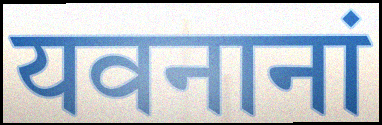
यवनानां